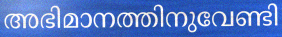
അഭിമാനത്തിനുവേണ്ടി